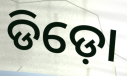
ଡିଡ଼ୋ